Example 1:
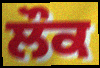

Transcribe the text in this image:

ਲੌਕ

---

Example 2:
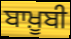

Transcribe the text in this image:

ਬਾਖ਼ੂਬੀ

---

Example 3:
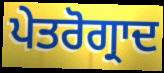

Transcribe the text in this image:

ਪੇਤਰੋਗ੍ਰਾਦ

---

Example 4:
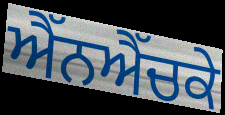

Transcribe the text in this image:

ਐੱਨਐੱਚਕੇ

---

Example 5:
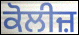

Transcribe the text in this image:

ਕੋਲੀਜ਼